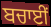
ਬਚਾਈਂ